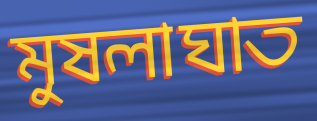
মুষলাঘাত